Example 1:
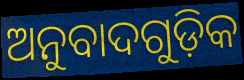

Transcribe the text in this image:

ଅନୁବାଦଗୁଡ଼ିକ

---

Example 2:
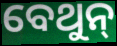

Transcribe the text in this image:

ବେଥୁନ୍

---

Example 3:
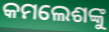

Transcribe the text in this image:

କମଲେଶଙ୍କୁ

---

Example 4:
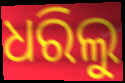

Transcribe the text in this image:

ଧରିଲୁ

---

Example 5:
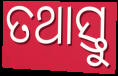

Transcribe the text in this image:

ତଥାସ୍ତୁ